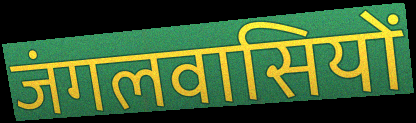
जंगलवासियों